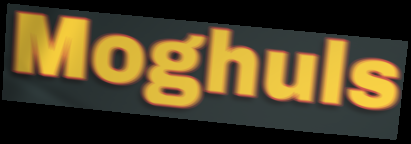
Moghuls